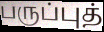
பருப்புத்